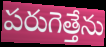
పరుగెత్తేను